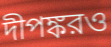
দীপঙ্করও